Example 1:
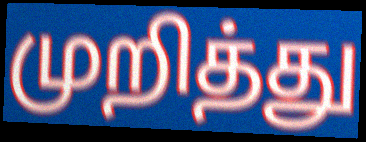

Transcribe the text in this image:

முறித்து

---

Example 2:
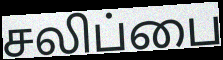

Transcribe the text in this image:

சலிப்பை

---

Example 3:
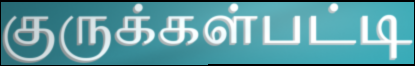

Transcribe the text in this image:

குருக்கள்பட்டி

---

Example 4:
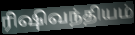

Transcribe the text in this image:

ரிஷிவந்தியம்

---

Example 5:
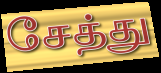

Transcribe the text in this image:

சேத்து